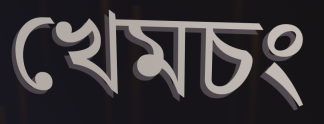
খেমচং